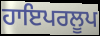
ਹਾਇਪਰਲੂਪ